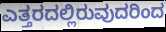
ಎತ್ತರದಲ್ಲಿರುವುದರಿಂದ